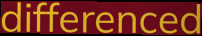
differenced